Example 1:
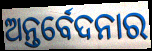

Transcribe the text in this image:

ଅନ୍ତର୍ବେଦନାର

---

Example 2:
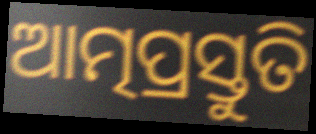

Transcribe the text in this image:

ଆତ୍ମପ୍ରସ୍ତୁତି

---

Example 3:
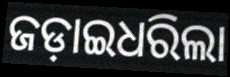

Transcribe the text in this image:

ଜଡ଼ାଇଧରିଲା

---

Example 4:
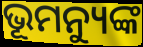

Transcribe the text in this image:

ଭୂମନ୍ୟୁଙ୍କ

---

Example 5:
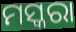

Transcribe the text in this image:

ମସ୍କରା